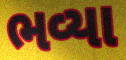
ભવ્યા